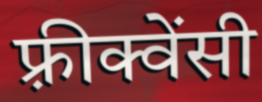
फ़्रीक्वेंसी